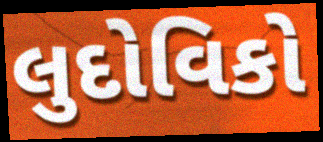
લુદોવિકો